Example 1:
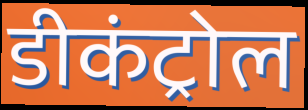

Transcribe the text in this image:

डीकंट्रोल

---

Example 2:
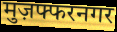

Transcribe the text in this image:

मुज़फ्फरनगर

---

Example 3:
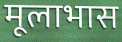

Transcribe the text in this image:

मूलाभास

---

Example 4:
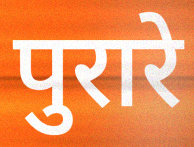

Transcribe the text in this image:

पुरारे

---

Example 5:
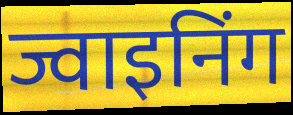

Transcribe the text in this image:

ज्वाइनिंग